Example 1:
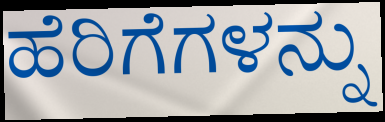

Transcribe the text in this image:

ಹೆರಿಗೆಗಳನ್ನು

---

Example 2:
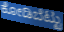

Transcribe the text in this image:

ಕೋಡಿಬೆಟ್ಟು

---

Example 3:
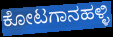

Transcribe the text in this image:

ಕೋಟಗಾನಹಳ್ಳಿ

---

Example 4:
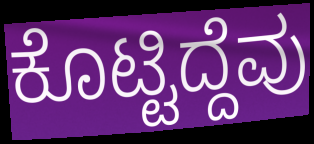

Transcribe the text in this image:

ಕೊಟ್ಟಿದ್ದೆವು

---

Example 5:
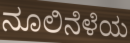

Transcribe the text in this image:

ನೂಲಿನೆಳೆಯ